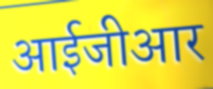
आईजीआर